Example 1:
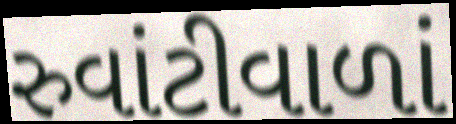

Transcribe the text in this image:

રુવાંટીવાળાં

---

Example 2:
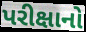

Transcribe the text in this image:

પરીક્ષાનો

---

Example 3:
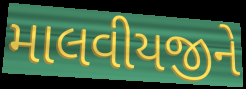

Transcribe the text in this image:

માલવીયજીને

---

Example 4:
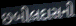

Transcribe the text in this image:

છબીલદાસની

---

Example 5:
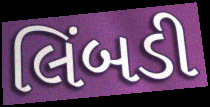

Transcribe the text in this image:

લિંબડી